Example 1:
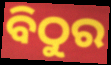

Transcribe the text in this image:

ବିଠୁର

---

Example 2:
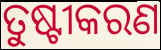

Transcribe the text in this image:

ତୁଷ୍ଟୀକରଣ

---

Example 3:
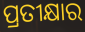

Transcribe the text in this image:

ପ୍ରତୀକ୍ଷାର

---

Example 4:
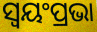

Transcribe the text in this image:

ସ୍ଵୟଂପ୍ରଭା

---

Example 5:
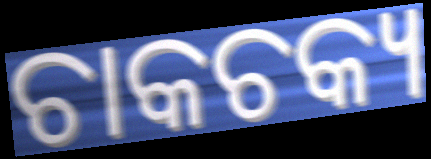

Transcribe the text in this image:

ଚାକଚକ୍ୟ